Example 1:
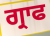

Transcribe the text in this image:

ਗ੍ਰਾਫ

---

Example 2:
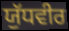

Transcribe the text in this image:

ਯੁੱਧਵੀਰ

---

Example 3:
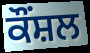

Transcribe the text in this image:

ਕੌਂਸ਼ਲ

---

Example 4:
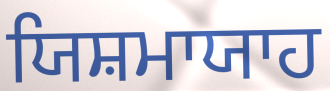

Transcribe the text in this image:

ਯਿਸ਼ਮਾਯਾਹ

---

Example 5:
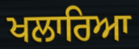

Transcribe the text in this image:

ਖਲਾਰਿਆ